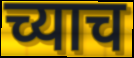
च्याच